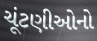
ચૂંટણીઓનો